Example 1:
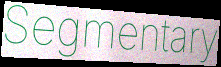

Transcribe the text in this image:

Segmentary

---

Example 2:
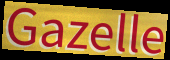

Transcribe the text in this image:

Gazelle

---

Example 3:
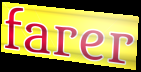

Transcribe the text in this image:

farer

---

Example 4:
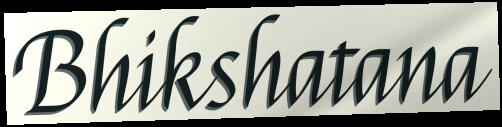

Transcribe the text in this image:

Bhikshatana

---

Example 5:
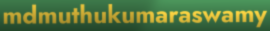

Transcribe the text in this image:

mdmuthukumaraswamy